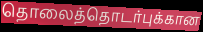
தொலைத்தொடர்புக்கான